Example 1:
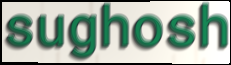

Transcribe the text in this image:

sughosh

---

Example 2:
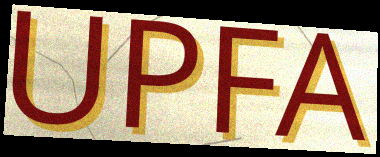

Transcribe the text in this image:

UPFA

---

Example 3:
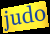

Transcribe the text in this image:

judo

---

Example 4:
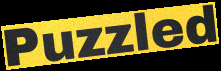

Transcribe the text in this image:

Puzzled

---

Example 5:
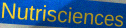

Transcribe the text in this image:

Nutrisciences